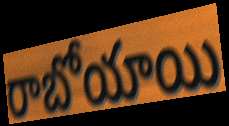
రాబోయాయి